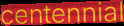
centennial